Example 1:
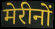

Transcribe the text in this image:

मेरीनों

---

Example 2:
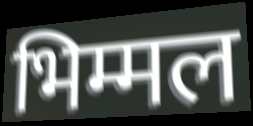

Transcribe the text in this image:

भिम्मल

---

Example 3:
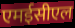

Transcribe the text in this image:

एमईसीएल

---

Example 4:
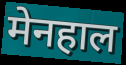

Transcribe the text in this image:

मेनहाल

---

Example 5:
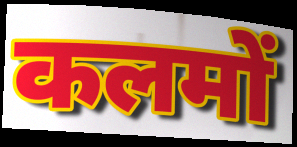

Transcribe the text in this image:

कलमों